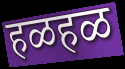
हळहळ